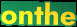
onthe